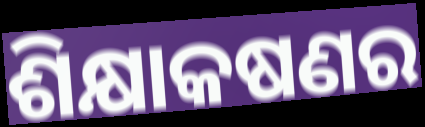
ଶିକ୍ଷାକଷଣର